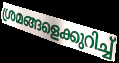
ശ്രമങ്ങളെക്കുറിച്ച്